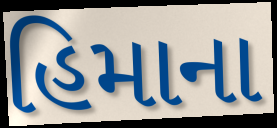
હિમાના